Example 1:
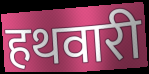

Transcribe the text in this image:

हथवारी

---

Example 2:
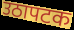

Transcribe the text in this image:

उठापटक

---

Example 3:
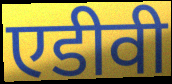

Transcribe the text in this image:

एडीवी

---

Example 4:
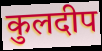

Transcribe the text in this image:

कुलदीप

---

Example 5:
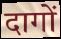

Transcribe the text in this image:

दागों